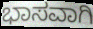
ಭಾಸವಾಗಿ